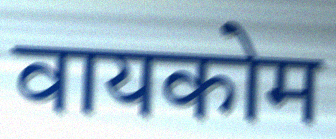
वायकोम